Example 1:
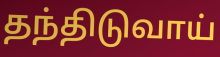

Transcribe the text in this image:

தந்திடுவாய்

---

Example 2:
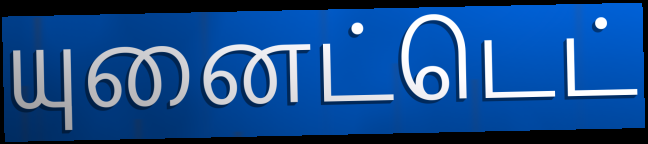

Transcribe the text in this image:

யுனைட்டெட்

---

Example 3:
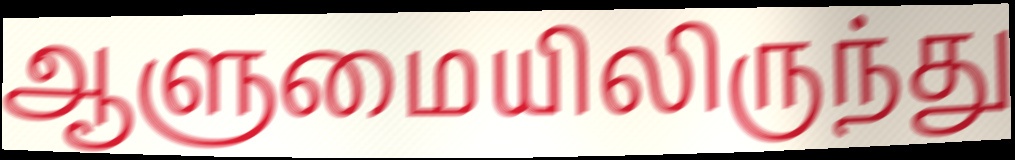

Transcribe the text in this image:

ஆளுமையிலிருந்து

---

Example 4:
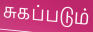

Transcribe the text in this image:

சுகப்படும்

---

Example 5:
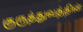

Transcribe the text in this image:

குருத்துவத்தின்